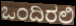
ಒಂದಿರಲಿ